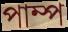
পাম্প